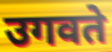
उगवते